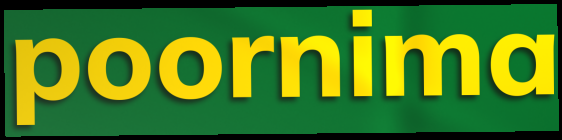
poornima